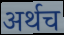
अर्थच